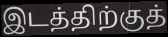
இடத்திற்குத்